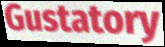
Gustatory